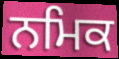
ਨਮਿਕ